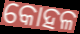
କୋହଳ